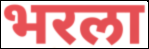
भरला